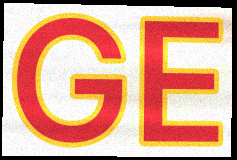
GE